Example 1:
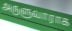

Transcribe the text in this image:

அருளுவாராக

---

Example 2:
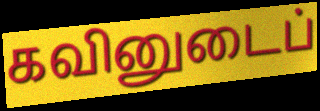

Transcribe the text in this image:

கவினுடைப்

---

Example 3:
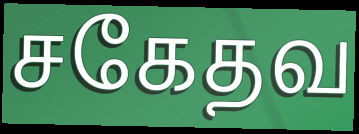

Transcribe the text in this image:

சகேதவ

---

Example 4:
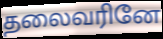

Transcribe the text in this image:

தலைவரினே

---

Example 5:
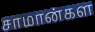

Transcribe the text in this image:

சாமான்கள